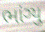
ભાંગ્યુ